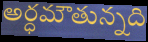
అర్ధమౌతున్నది